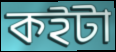
কইটা